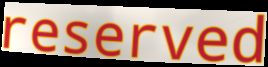
reserved